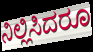
ನಿಲ್ಲಿಸಿದರೂ